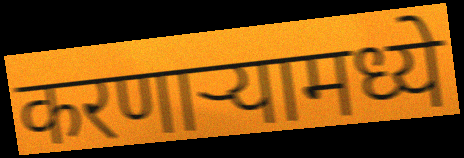
करणाऱ्यामध्ये